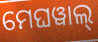
ମେଘୱାଲ୍